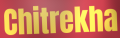
Chitrekha